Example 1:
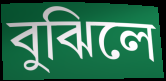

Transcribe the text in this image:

বুঝিলে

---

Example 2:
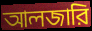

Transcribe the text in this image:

আলজারি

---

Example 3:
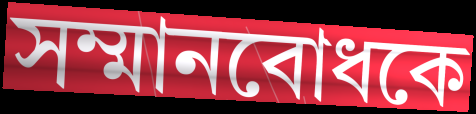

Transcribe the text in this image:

সম্মানবোধকে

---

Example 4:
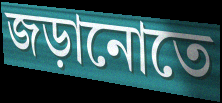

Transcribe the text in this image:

জড়ানোতে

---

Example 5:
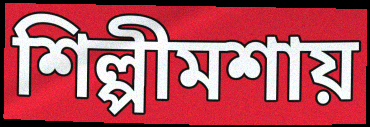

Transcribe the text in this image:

শিল্পীমশায়